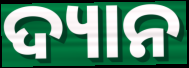
ଦ୍ୟାନ